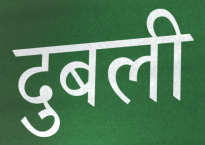
दुबली